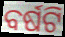
ବର୍ଷଟି